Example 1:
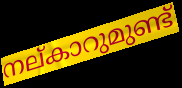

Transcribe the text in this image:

നല്കാറുമുണ്ട്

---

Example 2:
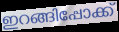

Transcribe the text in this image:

ഇറങ്ങിപ്പോക്ക്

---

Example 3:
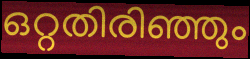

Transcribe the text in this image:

ഒറ്റതിരിഞ്ഞും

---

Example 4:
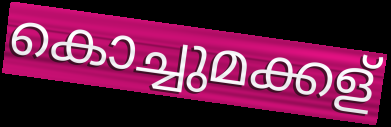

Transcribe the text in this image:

കൊച്ചുമക്കള്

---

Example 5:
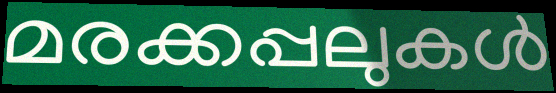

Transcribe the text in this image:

മരക്കപ്പലുകൾ